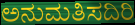
ಅನುಮತಿಸದಿರಿ